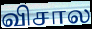
விசால